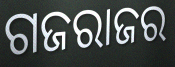
ଗଜରାଜର